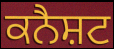
ਕਨੈਸ਼ਟ